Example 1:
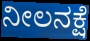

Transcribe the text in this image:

ನೀಲನಕ್ಷೆ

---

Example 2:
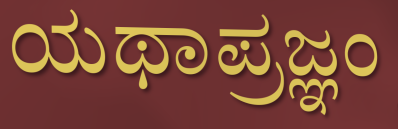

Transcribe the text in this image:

ಯಥಾಪ್ರಜ್ಞಂ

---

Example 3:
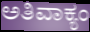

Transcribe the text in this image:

ಅತಿವಾಕ್ಯಂ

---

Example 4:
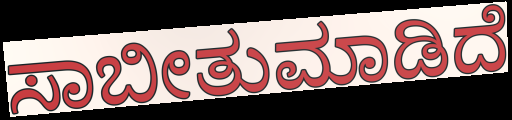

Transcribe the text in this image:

ಸಾಬೀತುಮಾಡಿದೆ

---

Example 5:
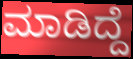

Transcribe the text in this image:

ಮಾಡಿದ್ದೆ